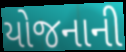
યોજનાની